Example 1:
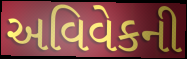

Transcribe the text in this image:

અવિવેકની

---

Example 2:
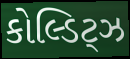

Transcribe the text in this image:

કોલ્ડિટ્ઝ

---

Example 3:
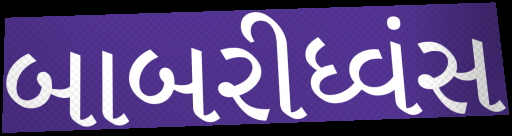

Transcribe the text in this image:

બાબરીધ્વંસ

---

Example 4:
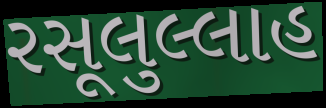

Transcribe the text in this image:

રસૂલુલ્લાહ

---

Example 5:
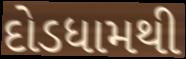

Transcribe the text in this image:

દોડધામથી